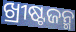
ଖ୍ରୀଷ୍ଟଜନ୍ମ